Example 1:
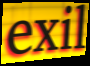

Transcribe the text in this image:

exil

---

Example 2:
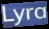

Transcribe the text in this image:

Lyra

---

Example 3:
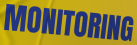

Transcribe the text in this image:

MONITORING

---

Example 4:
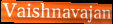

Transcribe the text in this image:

Vaishnavajan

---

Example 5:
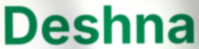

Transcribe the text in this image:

Deshna